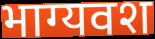
भाग्यवश